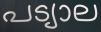
പട്യാല